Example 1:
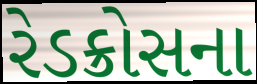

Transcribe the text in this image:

રેડક્રોસના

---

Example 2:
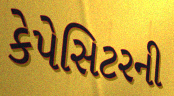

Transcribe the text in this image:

કેપેસિટરની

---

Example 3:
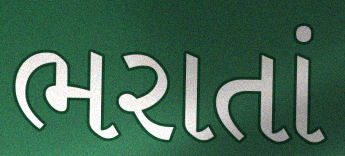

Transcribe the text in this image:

ભરાતાં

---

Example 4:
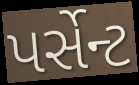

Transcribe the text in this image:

પર્સેન્ટ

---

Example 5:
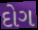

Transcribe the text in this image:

દોગ